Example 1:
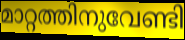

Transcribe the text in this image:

മാറ്റത്തിനുവേണ്ടി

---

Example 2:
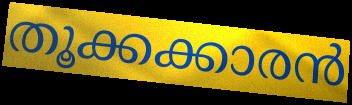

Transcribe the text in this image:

തൂക്കക്കാരൻ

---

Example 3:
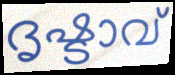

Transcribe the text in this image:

ദൃഷ്ടാവ്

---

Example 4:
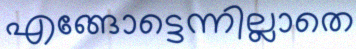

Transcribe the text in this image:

എങ്ങോട്ടെന്നില്ലാതെ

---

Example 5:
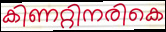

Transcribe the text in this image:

കിണറ്റിനരികെ